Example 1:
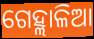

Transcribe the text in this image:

ଗେହ୍ଲାଳିଆ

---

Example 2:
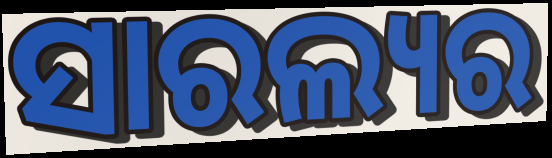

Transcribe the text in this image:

ସାରଲ୍ୟର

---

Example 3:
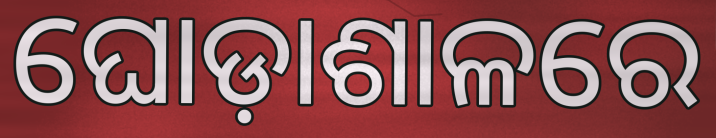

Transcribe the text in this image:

ଘୋଡ଼ାଶାଳରେ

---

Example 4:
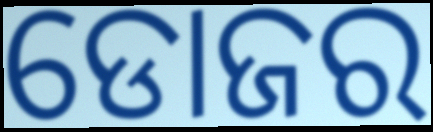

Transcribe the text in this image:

ଡୋଜର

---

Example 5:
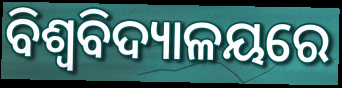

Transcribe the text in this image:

ବିଶ୍ବବିଦ୍ୟାଳୟରେ